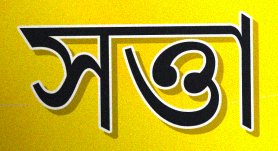
সত্তা